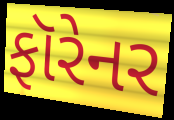
ફૉરેનર